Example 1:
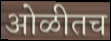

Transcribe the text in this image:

ओळीतच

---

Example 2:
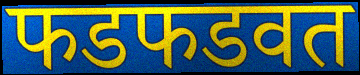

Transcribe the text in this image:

फडफडवत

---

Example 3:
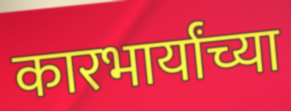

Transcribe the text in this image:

कारभार्यांच्या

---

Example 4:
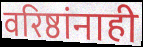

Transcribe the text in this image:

वरिष्ठांनाही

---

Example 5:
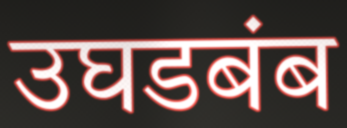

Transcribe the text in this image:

उघडबंब